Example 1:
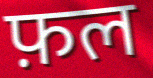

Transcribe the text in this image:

फ़ल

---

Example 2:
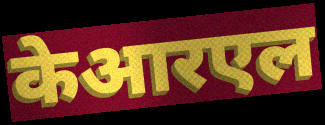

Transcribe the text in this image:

केआरएल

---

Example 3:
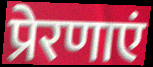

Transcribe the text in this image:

प्रेरणाएं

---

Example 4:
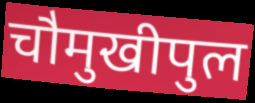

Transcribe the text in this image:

चौमुखीपुल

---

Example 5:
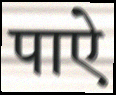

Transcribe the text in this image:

पाऐ